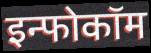
इन्फोकॉम